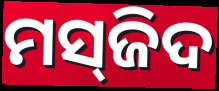
ମସ୍‌ଜିଦ